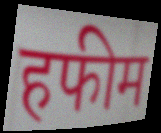
हफीम